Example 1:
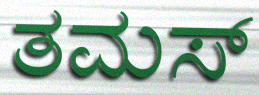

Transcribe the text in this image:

ತಮಸ್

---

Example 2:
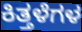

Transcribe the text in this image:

ಕಿತ್ತಳೆಗಳ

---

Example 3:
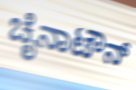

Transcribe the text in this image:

ಚೈನಾಟೌನ್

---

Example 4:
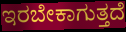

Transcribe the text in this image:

ಇರಬೇಕಾಗುತ್ತದೆ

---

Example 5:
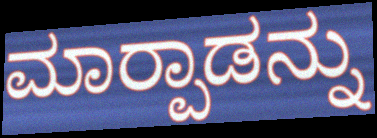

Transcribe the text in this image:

ಮಾರ‍್ಪಾಡನ್ನು